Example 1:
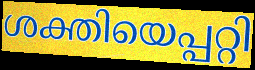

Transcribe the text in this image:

ശക്തിയെപ്പറ്റി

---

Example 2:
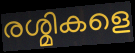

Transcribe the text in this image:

രശ്മികളെ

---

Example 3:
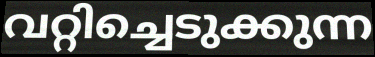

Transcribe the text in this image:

വറ്റിച്ചെടുക്കുന്ന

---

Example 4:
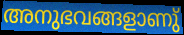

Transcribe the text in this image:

അനുഭവങ്ങളാണു്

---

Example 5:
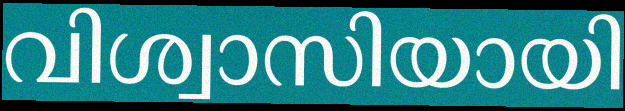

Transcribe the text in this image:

വിശ്വാസിയായി